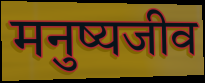
मनुष्यजीव